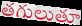
తగులుతూ